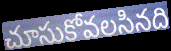
చూసుకోవలసినది